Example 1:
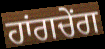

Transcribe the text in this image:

ਹਾਂਗਚੇਂਗ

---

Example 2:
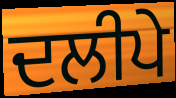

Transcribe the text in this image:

ਦਲੀਪੇ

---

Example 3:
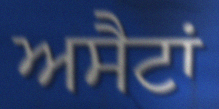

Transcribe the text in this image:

ਅਸੈਟਾਂ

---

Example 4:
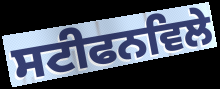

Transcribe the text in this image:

ਸਟੀਫਨਵਿਲੇ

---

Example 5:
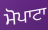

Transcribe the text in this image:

ਮੋਪਾਟਾ